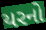
યરનો